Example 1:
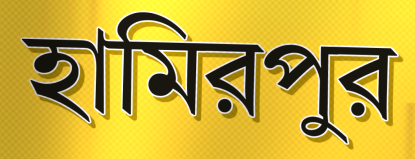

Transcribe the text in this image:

হামিরপুর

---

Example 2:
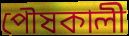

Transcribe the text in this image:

পৌষকালী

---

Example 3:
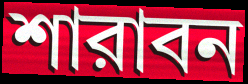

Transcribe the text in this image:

শারাবন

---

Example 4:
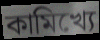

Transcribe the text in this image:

কামিখ্যে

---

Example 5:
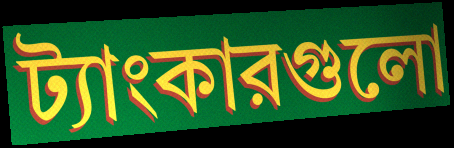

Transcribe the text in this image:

ট্যাংকারগুলো